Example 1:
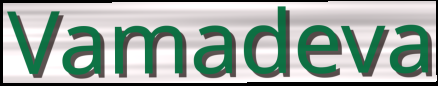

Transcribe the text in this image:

Vamadeva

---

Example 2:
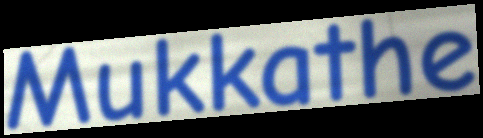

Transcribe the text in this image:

Mukkathe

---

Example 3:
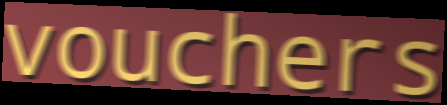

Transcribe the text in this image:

vouchers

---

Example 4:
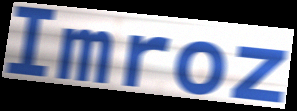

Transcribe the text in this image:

Imroz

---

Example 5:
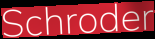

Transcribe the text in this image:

Schroder